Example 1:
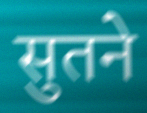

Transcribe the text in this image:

सुतने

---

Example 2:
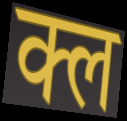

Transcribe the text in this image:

क्ल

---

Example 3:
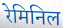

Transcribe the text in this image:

रेमिनिल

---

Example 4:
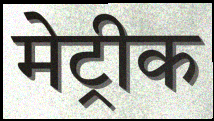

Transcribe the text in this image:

मेट्रीक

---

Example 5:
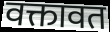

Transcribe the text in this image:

वक्तावत